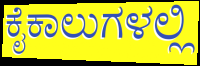
ಕೈಕಾಲುಗಳಲ್ಲಿ